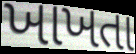
ખાખતા